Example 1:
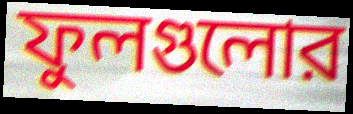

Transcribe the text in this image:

ফুলগুলোর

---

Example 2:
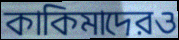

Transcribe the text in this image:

কাকিমাদেরও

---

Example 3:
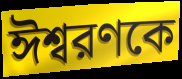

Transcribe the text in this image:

ঈশ্বরণকে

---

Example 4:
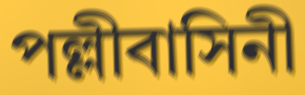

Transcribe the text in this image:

পল্লীবাসিনী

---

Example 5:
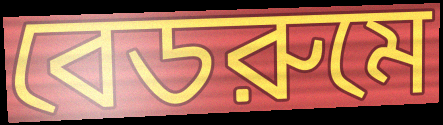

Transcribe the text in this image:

বেডরুমে